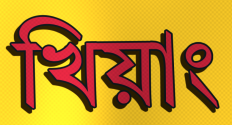
খিয়াং